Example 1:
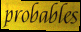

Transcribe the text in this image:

probables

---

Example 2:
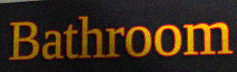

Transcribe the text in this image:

Bathroom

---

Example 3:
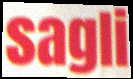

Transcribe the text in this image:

sagli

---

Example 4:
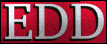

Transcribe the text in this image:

EDD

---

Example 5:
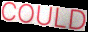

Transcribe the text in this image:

COULD